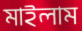
মাইলাম